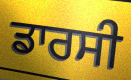
ਡਾਰਸੀ